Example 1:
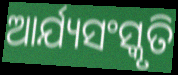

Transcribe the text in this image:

ଆର୍ଯ୍ୟସଂସ୍କୃତି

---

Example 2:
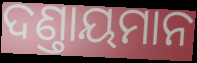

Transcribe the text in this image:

ଦଣ୍ତାୟମାନ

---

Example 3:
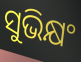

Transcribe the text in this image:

ସୁଭିକ୍ଷଂ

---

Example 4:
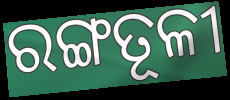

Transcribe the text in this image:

ରଙ୍ଗତୂଳୀ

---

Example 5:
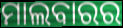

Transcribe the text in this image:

ମାଲବାରର